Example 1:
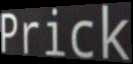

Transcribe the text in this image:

Prick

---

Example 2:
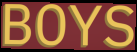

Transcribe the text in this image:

BOYS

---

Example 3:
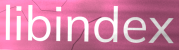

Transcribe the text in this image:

libindex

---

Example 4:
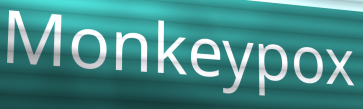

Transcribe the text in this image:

Monkeypox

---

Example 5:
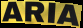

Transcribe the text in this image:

ARIA